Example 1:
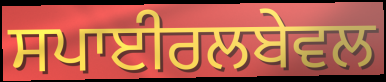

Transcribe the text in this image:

ਸਪਾਈਰਲਬੇਵਲ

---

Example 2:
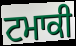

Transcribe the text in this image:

ਟਮਾਕੀ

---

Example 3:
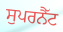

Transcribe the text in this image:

ਸੁਪਰਨੈੱਟ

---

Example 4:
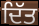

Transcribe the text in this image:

ਦਿੱਤ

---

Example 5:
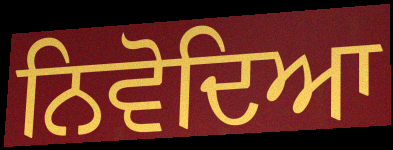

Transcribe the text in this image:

ਨਿਵੋਦਿਆ